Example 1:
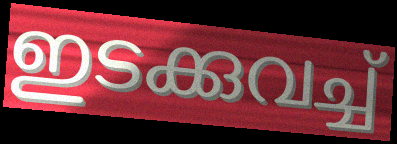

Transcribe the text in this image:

ഇടക്കുവച്ച്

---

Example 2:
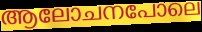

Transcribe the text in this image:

ആലോചനപോലെ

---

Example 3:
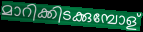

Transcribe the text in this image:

മാറിക്കിടക്കുമ്പോള്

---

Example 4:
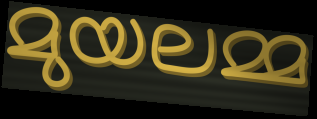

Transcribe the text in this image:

മുയലമ്മ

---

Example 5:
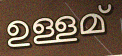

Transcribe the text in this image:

ഉള്ളമ്